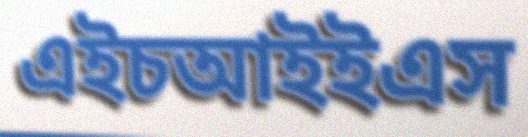
এইচআইইএস